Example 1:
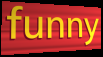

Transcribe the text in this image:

funny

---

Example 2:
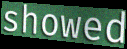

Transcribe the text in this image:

showed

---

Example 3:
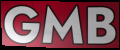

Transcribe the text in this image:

GMB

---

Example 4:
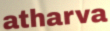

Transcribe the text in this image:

atharva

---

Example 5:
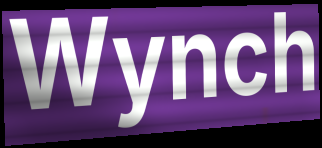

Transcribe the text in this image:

Wynch